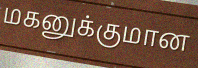
மகனுக்குமான